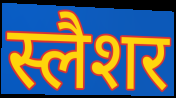
स्लैशर